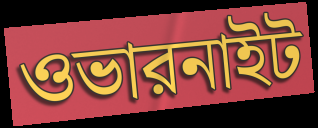
ওভারনাইট